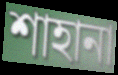
শাহানা